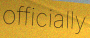
officially